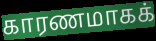
காரணமாகக்